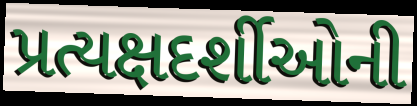
પ્રત્યક્ષદર્શીઓની